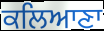
ਕਲਿਆਣਾ